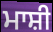
ਮਾਸ਼ੀ